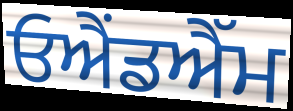
ਓਐਂਡਐੱਮ